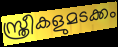
സ്ത്രീകളുമടക്കം